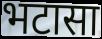
भटासा